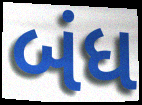
બંધ